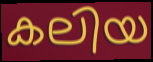
കലിയ